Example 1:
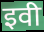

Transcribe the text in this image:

इवी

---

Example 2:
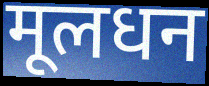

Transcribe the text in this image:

मूलधन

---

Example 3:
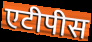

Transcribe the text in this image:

एटीपीस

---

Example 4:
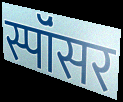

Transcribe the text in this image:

स्पॉंसर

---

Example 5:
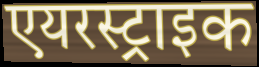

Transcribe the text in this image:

एयरस्ट्राइक